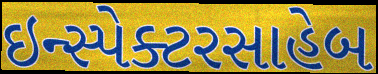
ઇન્સ્પેક્ટરસાહેબ